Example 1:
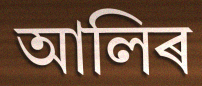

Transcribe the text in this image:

আলিৰ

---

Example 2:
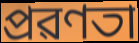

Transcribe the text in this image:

প্ৰৱণতা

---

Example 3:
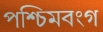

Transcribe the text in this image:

পশ্চিমবংগ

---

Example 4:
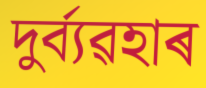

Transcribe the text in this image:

দুৰ্ব্যৱহাৰ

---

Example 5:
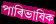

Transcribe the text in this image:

পাৰিভাষিক